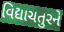
વિદ્યાચતુરને